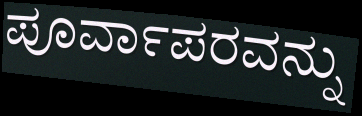
ಪೂರ್ವಾಪರವನ್ನು